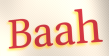
Baah